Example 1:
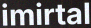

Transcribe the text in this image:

imirtal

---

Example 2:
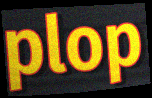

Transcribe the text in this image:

plop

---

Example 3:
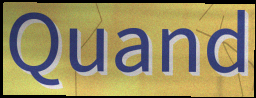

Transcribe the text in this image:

Quand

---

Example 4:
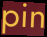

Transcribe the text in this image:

pin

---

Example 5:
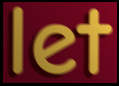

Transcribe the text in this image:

let